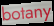
botany